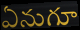
ఏనుగూ